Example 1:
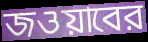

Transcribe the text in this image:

জওয়াবের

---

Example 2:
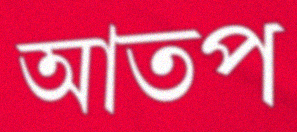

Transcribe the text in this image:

আতপ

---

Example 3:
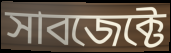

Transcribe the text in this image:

সাবজেক্টে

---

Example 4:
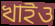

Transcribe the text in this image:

খাইও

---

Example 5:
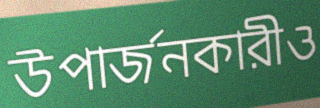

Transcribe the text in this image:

উপার্জনকারীও